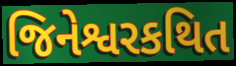
જિનેશ્વરકથિત